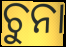
ଚୁନା